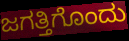
ಜಗತ್ತಿಗೊಂದು